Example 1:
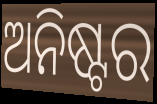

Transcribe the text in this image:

ଅନିଷ୍ଟର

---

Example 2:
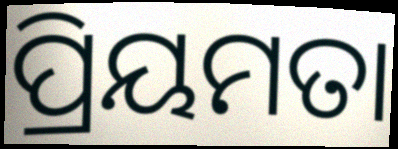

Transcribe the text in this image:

ପ୍ରିୟମତା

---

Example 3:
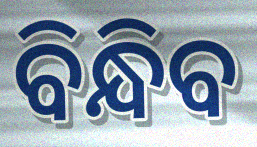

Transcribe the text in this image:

ବିନ୍ଧିବ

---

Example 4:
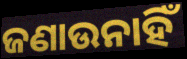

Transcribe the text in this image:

ଜଣାଉନାହିଁ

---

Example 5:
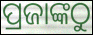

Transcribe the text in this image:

ପ୍ରଜାଙ୍କଠୁ